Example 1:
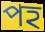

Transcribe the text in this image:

পহ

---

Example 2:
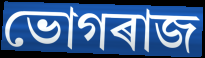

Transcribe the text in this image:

ভোগৰাজ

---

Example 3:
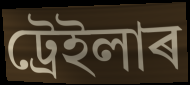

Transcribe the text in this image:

ট্ৰেইলাৰ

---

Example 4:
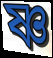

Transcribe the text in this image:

ষ্ণ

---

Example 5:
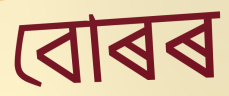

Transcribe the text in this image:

বোৰৰ